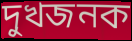
দুখজনক